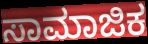
ಸಾಮಾಜಿಕ